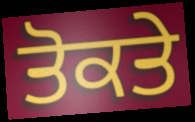
ਤੋਕਤੇ